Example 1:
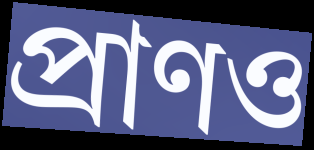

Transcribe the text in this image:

প্রাণও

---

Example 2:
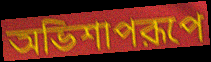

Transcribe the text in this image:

অভিশাপরূপে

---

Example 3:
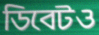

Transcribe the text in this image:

ডিবেটও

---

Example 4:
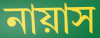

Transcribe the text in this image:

নায়াস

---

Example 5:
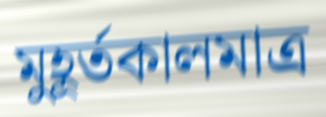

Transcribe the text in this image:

মুহূর্তকালমাত্র